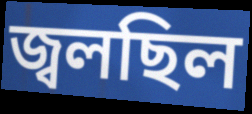
জ্বলছিল